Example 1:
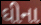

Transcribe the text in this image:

ઘીના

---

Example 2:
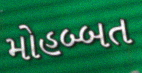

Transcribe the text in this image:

મોહબ્બત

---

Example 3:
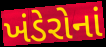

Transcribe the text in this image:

ખંડેરોનાં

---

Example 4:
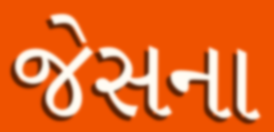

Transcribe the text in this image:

જેસના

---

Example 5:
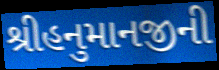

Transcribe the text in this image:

શ્રીહનુમાનજીની